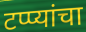
टप्प्यांचा